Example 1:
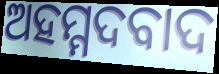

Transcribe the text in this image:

ଅହମ୍ମଦବାଦ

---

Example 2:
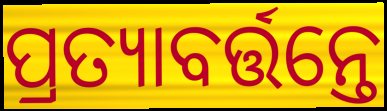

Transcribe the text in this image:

ପ୍ରତ୍ୟାବର୍ତ୍ତନ୍ତେ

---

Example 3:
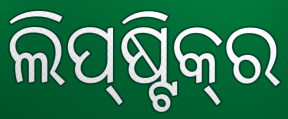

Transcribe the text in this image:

ଲିପ୍‌ଷ୍ଟିକ୍‌ର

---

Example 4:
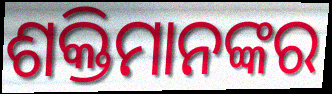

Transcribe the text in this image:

ଶକ୍ତିମାନଙ୍କର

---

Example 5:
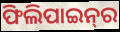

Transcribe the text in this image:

ଫିଲିପାଇନ୍‌ର